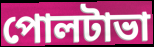
পোলটাভা